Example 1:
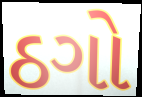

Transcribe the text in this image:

ઠગો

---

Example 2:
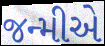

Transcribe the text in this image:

જન્મીએ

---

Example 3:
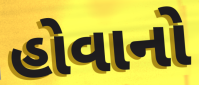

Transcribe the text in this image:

હોવાનો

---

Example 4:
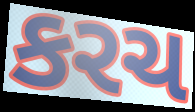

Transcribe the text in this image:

કરચ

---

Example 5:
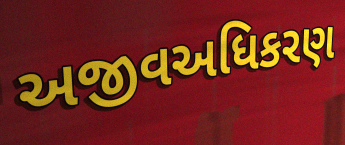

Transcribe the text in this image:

અજીવઅધિકરણ